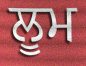
ਲੂਮ